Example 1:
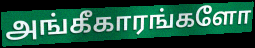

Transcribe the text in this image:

அங்கீகாரங்களோ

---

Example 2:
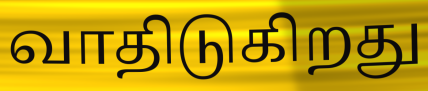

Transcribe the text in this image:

வாதிடுகிறது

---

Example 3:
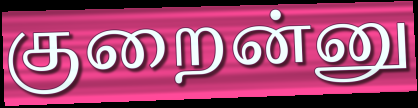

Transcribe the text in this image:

குறைன்னு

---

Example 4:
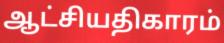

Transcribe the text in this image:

ஆட்சியதிகாரம்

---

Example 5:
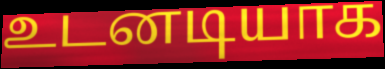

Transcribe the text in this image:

உடனடியாக